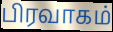
பிரவாகம்